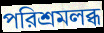
পরিশ্রমলব্ধ